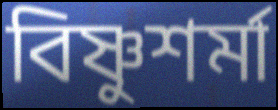
বিষ্ণুশর্মা